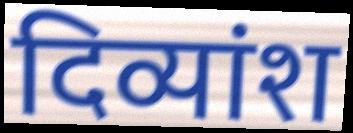
दिव्यांश